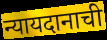
न्यायदानाची